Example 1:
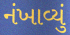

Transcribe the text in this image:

નંખાવ્યું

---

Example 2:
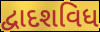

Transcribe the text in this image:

દ્વાદશવિધ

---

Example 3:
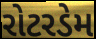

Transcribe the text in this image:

રોટરડેમ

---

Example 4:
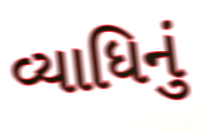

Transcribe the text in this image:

વ્યાધિનું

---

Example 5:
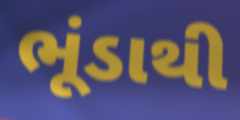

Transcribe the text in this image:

ભૂંડાથી